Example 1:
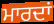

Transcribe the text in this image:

ਮਾਰਦਾਂ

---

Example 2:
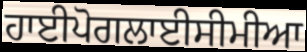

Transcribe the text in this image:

ਹਾਈਪੋਗਲਾਈਸੀਮੀਆ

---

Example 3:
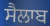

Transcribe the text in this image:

ਸੈਲਾਬ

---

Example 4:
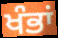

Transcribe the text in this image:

ਖੰਭਾਂ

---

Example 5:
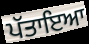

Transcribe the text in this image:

ਪੱਤਾਇਆ